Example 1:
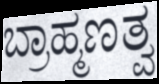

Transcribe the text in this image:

ಬ್ರಾಹ್ಮಣತ್ವ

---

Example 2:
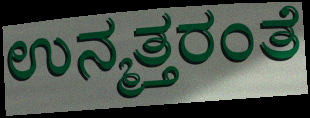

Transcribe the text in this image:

ಉನ್ಮತ್ತರಂತೆ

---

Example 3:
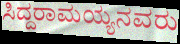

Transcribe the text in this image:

ಸಿದ್ದರಾಮಯ್ಯನವರು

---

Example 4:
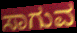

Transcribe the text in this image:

ಸಾಗುವ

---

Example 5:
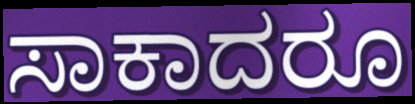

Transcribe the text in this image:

ಸಾಕಾದರೂ